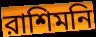
রাশিমনি